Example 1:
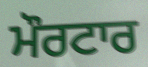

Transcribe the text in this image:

ਮੌਰਟਾਰ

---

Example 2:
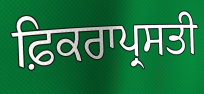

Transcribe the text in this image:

ਫ਼ਿਕਰਾਪ੍ਰਸਤੀ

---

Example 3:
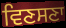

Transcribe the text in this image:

ਵਿਣਸਣਾ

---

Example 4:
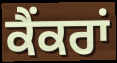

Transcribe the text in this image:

ਕੈਂਕਰਾਂ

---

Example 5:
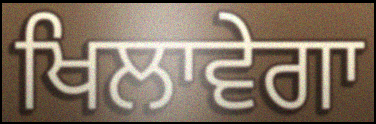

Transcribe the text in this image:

ਖਿਲਾਵੇਗਾ